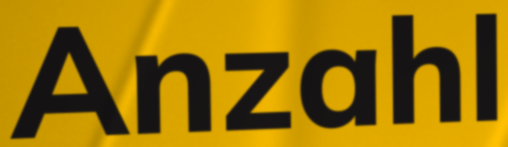
Anzahl